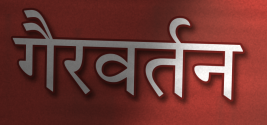
गैरवर्तन